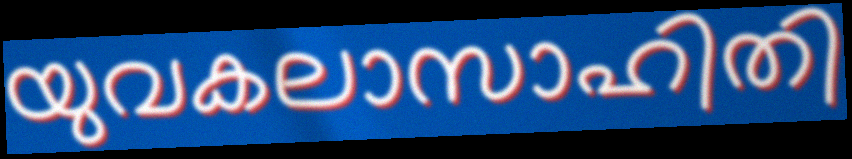
യുവകലാസാഹിതി